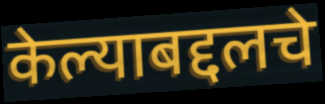
केल्याबद्दलचे